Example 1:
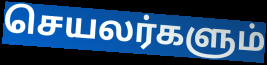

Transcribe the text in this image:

செயலர்களும்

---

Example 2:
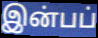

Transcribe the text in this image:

இன்பப்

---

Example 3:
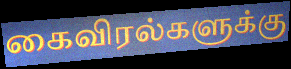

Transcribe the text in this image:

கைவிரல்களுக்கு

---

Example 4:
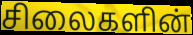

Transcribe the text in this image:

சிலைகளின்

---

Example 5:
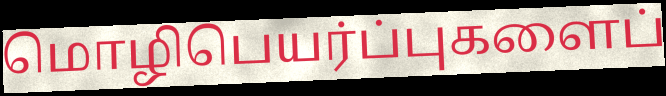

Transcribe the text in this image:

மொழிபெயர்ப்புகளைப்